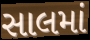
સાલમાં